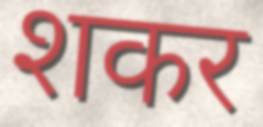
शकर